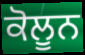
ਕੋਲੂਨ